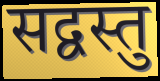
सद्वस्तु